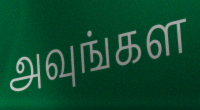
அவுங்கள